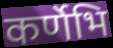
कर्णेभि